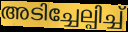
അടിച്ചേല്പിച്ച്